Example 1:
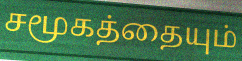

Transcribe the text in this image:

சமூகத்தையும்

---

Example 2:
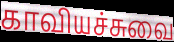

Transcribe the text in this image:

காவியச்சுவை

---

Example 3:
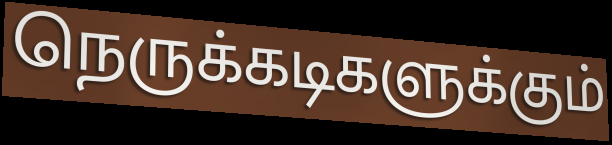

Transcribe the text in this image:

நெருக்கடிகளுக்கும்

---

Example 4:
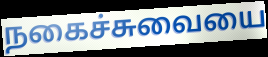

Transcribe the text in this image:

நகைச்சுவையை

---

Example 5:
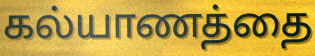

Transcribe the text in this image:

கல்யாணத்தை